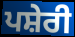
ਪਸ਼ੇਰੀ